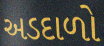
અડદાળો